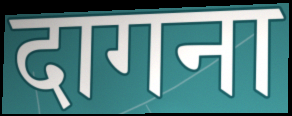
दागना